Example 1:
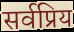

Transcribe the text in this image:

सर्वप्रिय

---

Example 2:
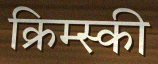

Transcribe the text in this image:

क्रिम्स्की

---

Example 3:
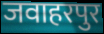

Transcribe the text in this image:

जवाहरपुर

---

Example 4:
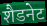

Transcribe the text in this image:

शैडनेट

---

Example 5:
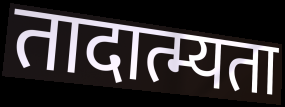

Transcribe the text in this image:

तादात्म्यता